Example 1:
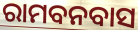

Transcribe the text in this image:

ରାମବନବାସ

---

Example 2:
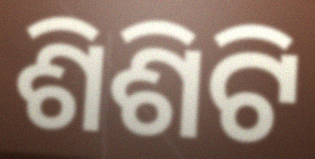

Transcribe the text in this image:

ଶିଶିଟି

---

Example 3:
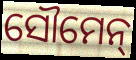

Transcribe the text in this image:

ସୌମେନ୍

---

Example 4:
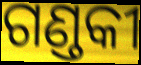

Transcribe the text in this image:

ଗଣ୍ଡକୀ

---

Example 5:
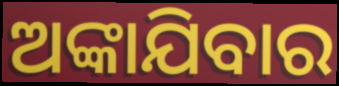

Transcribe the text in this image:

ଅଙ୍କାଯିବାର